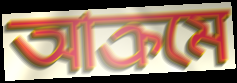
আক্রমে